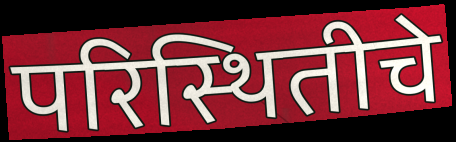
परिस्थितीचे